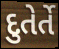
દુતેર્તે